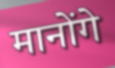
मानोंगे